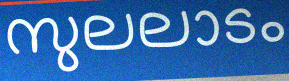
സുലലാടം